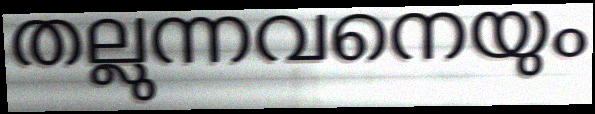
തല്ലുന്നവനെയും